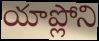
యాప్లోని